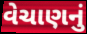
વેચાણનું